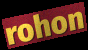
rohon